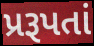
પ્રરૂપતાં